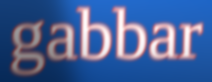
gabbar